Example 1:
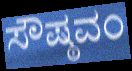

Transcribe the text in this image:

ಸೌಷ್ಠವಂ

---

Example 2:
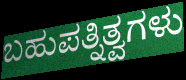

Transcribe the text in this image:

ಬಹುಪತ್ನಿತ್ವಗಳು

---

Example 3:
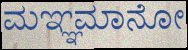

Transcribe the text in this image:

ಮಞ್ಞಮಾನೋ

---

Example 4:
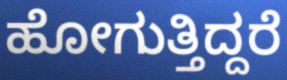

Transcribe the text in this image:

ಹೋಗುತ್ತಿದ್ದರೆ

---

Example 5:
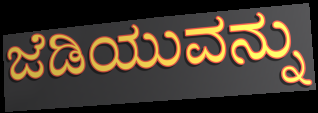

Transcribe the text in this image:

ಜೆಡಿಯುವನ್ನು